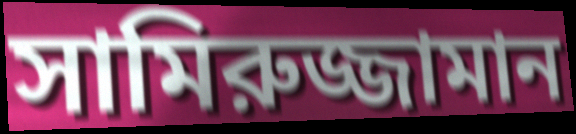
সামিরুজ্জামান